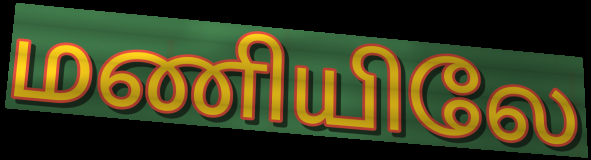
மணியிலே